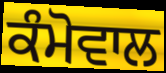
ਕੰਮੋਵਾਲ